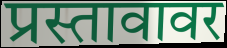
प्रस्तावावर